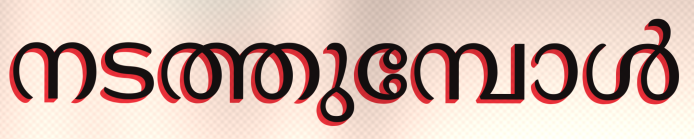
നടത്തുമ്പോൾ